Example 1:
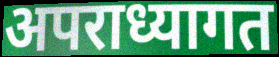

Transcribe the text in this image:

अपराध्यागत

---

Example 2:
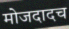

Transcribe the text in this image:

मोजदादच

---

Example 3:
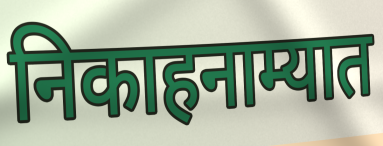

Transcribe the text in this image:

निकाहनाम्यात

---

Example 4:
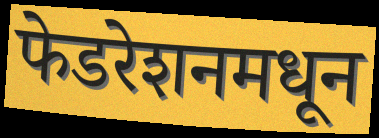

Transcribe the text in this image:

फेडरेशनमधून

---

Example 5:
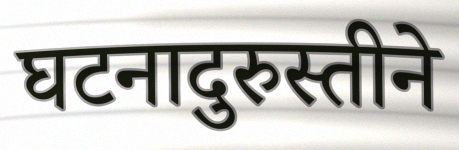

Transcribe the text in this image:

घटनादुरुस्तीने